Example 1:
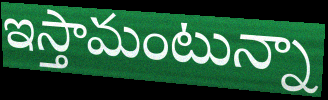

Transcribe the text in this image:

ఇస్తామంటున్నా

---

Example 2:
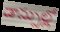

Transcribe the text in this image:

డాన్సుల్లో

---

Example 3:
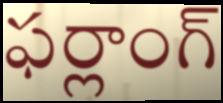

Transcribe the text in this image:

ఫర్లాంగ్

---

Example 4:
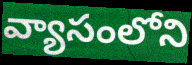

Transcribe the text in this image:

వ్యాసంలోని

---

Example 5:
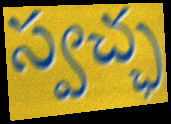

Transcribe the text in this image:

స్వచ్ఛ